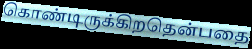
கொண்டிருக்கிறதென்பதை